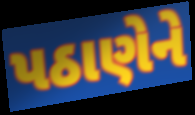
પઠાણેને